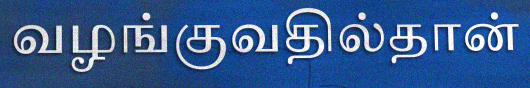
வழங்குவதில்தான்